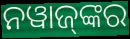
ନୱାଜ୍‍ଙ୍କର